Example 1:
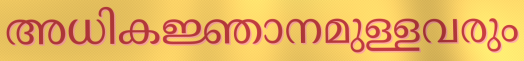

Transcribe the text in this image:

അധികജ്ഞാനമുള്ളവരും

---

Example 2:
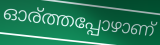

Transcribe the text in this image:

ഓര്ത്തപ്പോഴാണ്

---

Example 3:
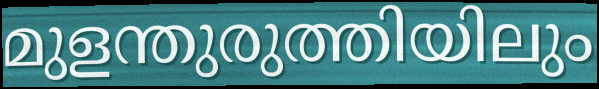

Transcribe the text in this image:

മുളന്തുരുത്തിയിലും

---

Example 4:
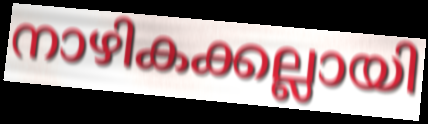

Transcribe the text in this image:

നാഴികക്കല്ലായി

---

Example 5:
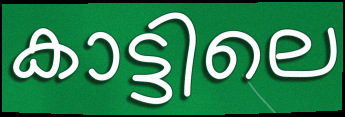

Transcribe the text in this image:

കാട്ടിലെ